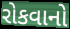
રોકવાનો